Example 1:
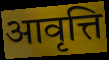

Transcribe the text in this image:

आवृत्ति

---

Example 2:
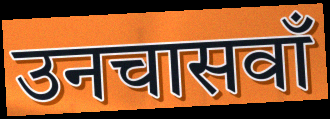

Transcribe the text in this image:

उनचासवाँ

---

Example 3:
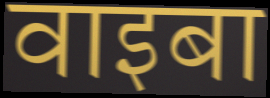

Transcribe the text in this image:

वाइबा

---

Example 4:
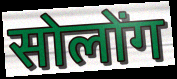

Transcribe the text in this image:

सोलोंग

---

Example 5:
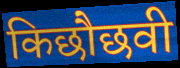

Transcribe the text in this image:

किछौछवी